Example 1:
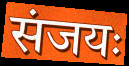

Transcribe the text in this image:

संजयः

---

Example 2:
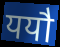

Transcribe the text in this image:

ययौ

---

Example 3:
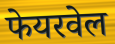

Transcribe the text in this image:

फेयरवेल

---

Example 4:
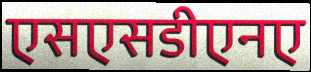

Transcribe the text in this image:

एसएसडीएनए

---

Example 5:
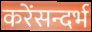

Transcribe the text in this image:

करेंसन्दर्भ